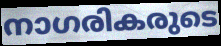
നാഗരികരുടെ